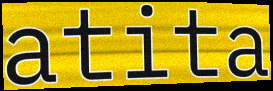
atita